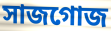
সাজগোজ